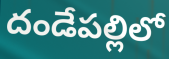
దండేపల్లిలో